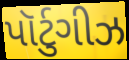
પૉર્ટુગીઝ